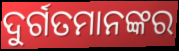
ଦୁର୍ଗତମାନଙ୍କର